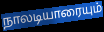
நாலடியாரையும்